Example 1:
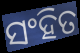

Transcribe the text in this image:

ସଂହିତ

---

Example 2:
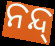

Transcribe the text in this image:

ନନ୍ଦ୍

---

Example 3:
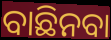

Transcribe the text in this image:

ବାଛିନବା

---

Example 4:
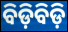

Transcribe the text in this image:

ବିଡ଼ିବିଡ଼ି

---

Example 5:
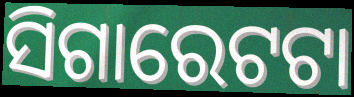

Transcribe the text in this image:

ସିଗାରେଟଟା